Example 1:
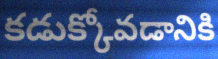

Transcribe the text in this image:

కడుక్కోవడానికి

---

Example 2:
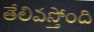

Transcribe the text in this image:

తేలివస్తోంది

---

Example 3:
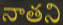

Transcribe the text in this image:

నాతని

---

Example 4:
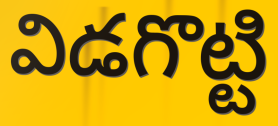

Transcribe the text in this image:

విడగొట్టి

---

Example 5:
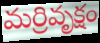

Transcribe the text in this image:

మర్రివృక్షం